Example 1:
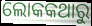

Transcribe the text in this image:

ଲୋକକଥାରୁ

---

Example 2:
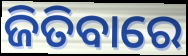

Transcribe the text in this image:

ଜିତିବାରେ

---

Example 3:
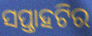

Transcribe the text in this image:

ସପ୍ତାହଟିର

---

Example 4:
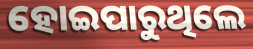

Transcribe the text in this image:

ହୋଇପାରୁଥିଲେ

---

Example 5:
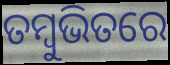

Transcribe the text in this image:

ତମ୍ବୁଭିତରେ